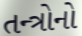
તન્ત્રોનો